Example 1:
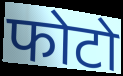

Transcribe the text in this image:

फोटो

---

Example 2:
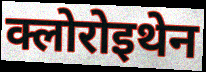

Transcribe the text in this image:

क्लोरोइथेन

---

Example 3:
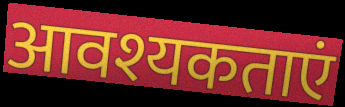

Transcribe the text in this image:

आवश्यकताएं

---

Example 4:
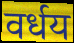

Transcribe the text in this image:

वर्धय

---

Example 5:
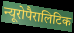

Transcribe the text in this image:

न्यूरोपैरालिटिक